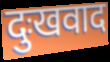
दुःखवाद